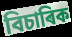
বিচাৰিক